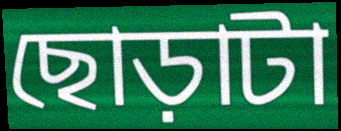
ছোড়াটা